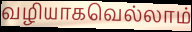
வழியாகவெல்லாம்